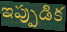
ఇప్పుడిక